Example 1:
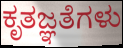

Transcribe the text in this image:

ಕೃತಜ್ಞತೆಗಳು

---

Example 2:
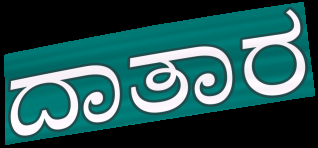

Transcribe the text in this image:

ದಾತಾರ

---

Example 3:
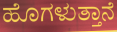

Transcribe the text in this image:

ಹೊಗಳುತ್ತಾನೆ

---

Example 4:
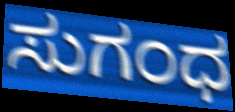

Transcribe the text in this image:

ಸುಗಂಧ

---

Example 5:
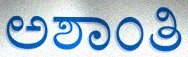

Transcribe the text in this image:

ಅಶಾಂತಿ